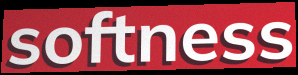
softness